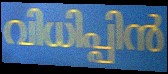
വിധിപ്പിൻ